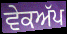
ਵੇਕਅੱਪ